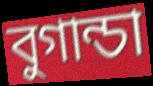
বুগান্ডা